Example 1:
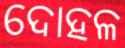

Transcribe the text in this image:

ଦୋହଳ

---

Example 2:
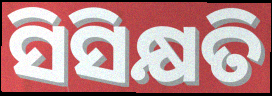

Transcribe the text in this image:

ସିସିକ୍ଷତି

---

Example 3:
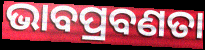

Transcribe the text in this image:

ଭାବପ୍ରବଣତା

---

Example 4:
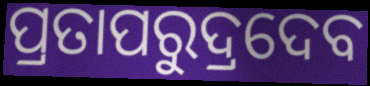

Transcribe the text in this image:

ପ୍ରତାପରୁଦ୍ରଦେବ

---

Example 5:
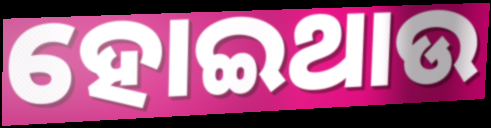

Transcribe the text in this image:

ହୋଇଥାଉ